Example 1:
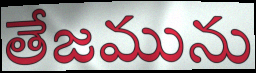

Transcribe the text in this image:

తేజమును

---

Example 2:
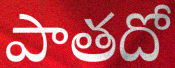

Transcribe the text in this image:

పాతదో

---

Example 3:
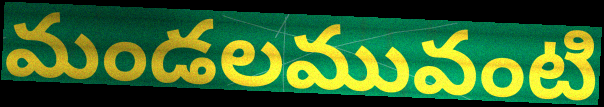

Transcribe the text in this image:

మండలమువంటి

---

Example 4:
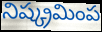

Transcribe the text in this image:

నిష్క్రమింప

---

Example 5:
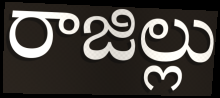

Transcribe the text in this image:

రాజిల్లు